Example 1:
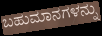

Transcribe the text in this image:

ಬಹುಮಾನಗಳನ್ನು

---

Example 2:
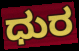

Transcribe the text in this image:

ಧುರ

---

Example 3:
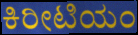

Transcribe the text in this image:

ಕಿರೀಟಿಯಂ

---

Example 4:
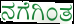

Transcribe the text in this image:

ನಗೆಗಿಂತ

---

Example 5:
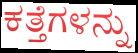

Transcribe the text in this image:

ಕತ್ತೆಗಳನ್ನು